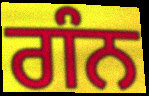
ਗੰਨ